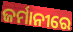
ଜର୍ମାନୀରେ